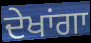
ਦੇਖਾਂਗਾ